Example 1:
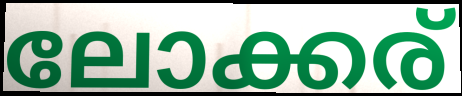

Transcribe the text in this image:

ലോക്കര്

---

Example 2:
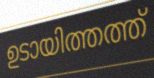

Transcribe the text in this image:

ഉടായിത്തത്ത്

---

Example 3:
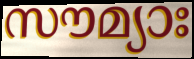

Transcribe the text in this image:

സൗമ്യാഃ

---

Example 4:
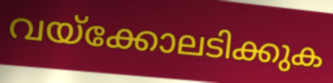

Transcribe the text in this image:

വയ്ക്കോലടിക്കുക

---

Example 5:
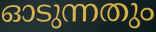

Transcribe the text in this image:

ഓടുന്നതും